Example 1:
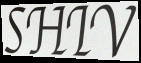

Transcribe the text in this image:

SHIV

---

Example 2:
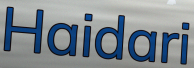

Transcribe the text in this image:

Haidari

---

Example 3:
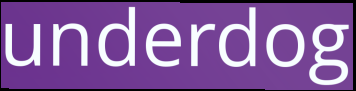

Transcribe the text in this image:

underdog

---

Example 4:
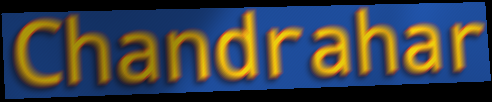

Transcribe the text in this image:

Chandrahar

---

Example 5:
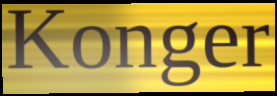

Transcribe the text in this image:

Konger